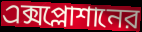
এক্সপ্লোশানের